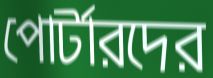
পোর্টারদের